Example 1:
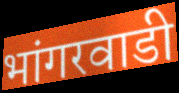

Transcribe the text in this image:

भांगरवाडी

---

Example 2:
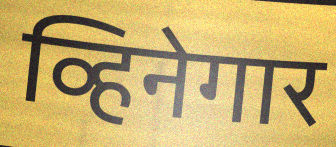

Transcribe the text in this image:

व्हिनेगार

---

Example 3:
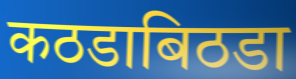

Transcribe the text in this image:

कठडाबिठडा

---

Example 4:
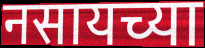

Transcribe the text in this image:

नसायच्या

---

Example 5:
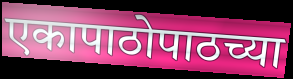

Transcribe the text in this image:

एकापाठोपाठच्या